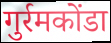
गुर्रमकोंडा